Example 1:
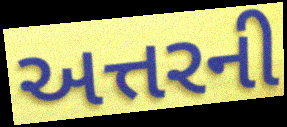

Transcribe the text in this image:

અત્તરની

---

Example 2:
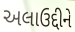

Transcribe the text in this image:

અલાઉદ્દીને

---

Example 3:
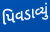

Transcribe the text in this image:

પિવડાવ્યું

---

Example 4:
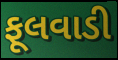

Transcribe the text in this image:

ફૂલવાડી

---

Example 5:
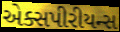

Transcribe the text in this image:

એક્સપીરીયન્સ